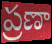
ప్రణా